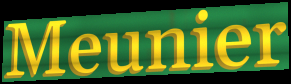
Meunier